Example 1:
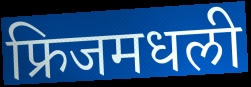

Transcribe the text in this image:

फ्रिजमधली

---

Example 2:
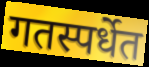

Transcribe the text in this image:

गतस्पर्धेत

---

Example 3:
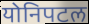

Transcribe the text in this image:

योनिपटल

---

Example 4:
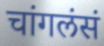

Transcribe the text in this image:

चांगलंसं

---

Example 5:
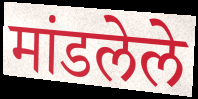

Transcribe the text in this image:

मांडलेले